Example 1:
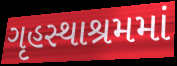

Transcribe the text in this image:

ગૃહસ્થાશ્રમમાં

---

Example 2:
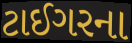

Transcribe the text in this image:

ટાઈગરના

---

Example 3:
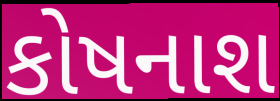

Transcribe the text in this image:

કોષનાશ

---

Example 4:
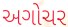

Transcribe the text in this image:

અગોચર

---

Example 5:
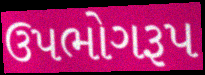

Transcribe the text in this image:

ઉપભોગરૂપ